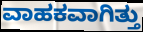
ವಾಹಕವಾಗಿತ್ತು